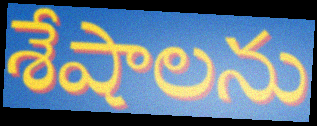
శేషాలను